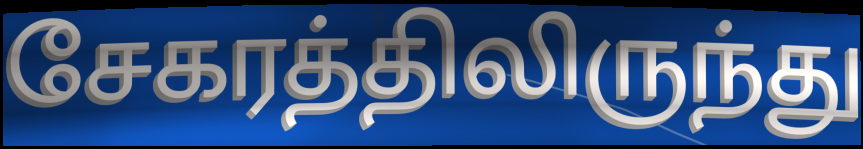
சேகரத்திலிருந்து